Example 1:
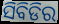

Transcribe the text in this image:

ସିବିଡିର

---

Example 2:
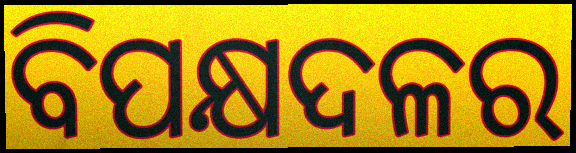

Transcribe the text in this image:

ବିପକ୍ଷଦଳର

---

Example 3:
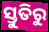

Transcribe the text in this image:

ସ୍ତୁତିରୁ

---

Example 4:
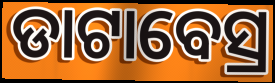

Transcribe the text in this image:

ଡାଟାବେସ୍ର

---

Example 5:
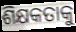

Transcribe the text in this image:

ଶିକ୍ଷକତାକୁ